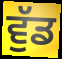
ਵੁੱਡ